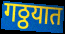
गठ्ठयात